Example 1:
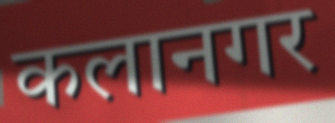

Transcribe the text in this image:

कलानगर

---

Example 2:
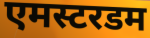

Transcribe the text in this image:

एमस्टरडम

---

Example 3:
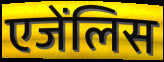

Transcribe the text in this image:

एजेंलिस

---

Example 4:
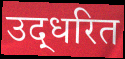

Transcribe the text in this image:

उद्धरित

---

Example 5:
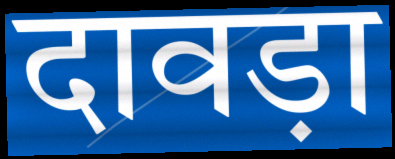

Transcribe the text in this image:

दावड़ा